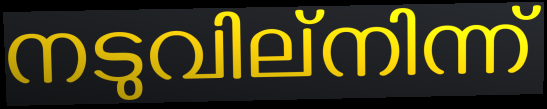
നടുവില്നിന്ന്